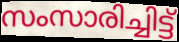
സംസാരിച്ചിട്ട്